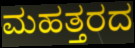
ಮಹತ್ತರದ